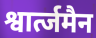
श्वार्त्जमैन